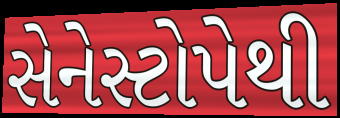
સેનેસ્ટોપેથી